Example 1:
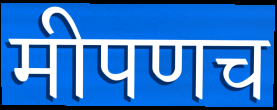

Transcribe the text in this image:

मीपणच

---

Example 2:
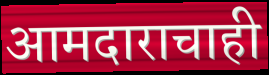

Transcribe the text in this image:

आमदाराचाही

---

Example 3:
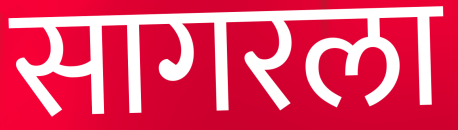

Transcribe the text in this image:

सागरला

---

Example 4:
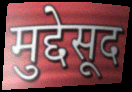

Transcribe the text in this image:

मुद्देसूद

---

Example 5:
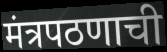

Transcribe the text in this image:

मंत्रपठणाची